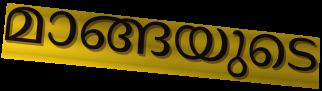
മാങ്ങയുടെ